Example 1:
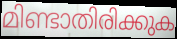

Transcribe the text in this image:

മിണ്ടാതിരിക്കുക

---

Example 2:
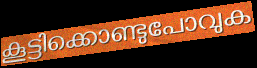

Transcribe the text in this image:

കൂട്ടിക്കൊണ്ടുപോവുക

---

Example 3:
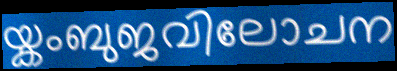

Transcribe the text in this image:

യ്കംബുജവിലോചന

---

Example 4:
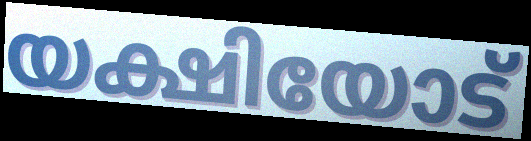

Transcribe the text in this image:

യക്ഷിയോട്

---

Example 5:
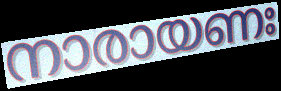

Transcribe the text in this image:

നാരായണഃ